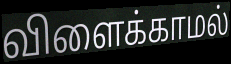
விளைக்காமல்